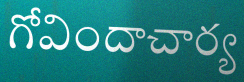
గోవిందాచార్య